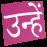
उन्हें